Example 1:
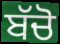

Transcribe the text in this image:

ਬੱਚੋ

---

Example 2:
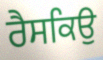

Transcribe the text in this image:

ਰੈਸਕਿਉ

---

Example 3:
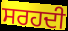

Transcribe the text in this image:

ਸਰਹਦੀ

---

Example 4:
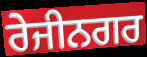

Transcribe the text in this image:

ਰੇਜੀਨਗਰ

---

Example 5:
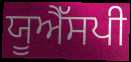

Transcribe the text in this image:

ਯੂਐੱਸਪੀ